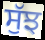
ਸੁੱਝ